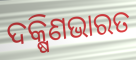
ଦକ୍ଷିଣଭାରତ